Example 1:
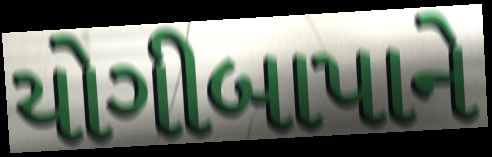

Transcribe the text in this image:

યોગીબાપાને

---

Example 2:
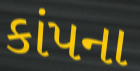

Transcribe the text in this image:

કાંપના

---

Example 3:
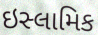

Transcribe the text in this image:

ઇસ્લામિક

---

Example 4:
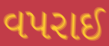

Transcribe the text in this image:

વપરાઈ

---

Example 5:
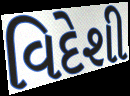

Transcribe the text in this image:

વિદેશી